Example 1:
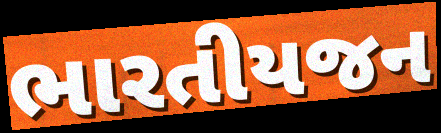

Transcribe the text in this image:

ભારતીયજન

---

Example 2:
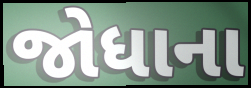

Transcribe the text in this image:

જોધાના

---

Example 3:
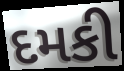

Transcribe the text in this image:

દમકી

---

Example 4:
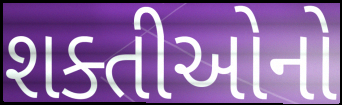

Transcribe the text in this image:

શક્તીઓનો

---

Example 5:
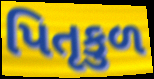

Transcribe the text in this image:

પિતૃકુળ